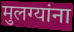
मुलग्यांना